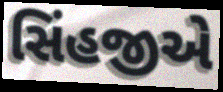
સિંહજીએ